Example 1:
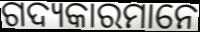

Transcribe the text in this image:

ଗଦ୍ୟକାରମାନେ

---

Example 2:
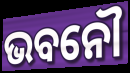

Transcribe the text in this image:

ଭବନୌ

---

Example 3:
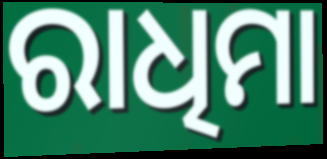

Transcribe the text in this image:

ରାଧିମା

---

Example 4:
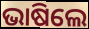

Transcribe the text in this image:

ଭାଷିଲେ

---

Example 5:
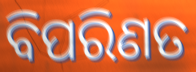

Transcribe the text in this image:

ବିପରିଣତ